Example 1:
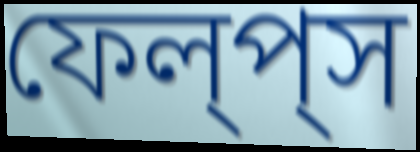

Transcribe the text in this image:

ফেল্‌প্‌স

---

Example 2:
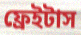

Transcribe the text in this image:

ফ্রেইটাস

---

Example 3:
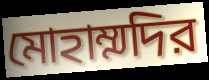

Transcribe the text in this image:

মোহাম্মদির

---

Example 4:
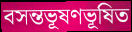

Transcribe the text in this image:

বসন্তভূষণভূষিত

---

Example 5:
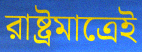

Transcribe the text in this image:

রাষ্ট্রমাত্রেই